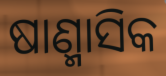
ଷାଣ୍ମାସିକ